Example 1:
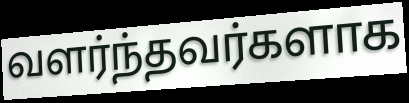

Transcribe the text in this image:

வளர்ந்தவர்களாக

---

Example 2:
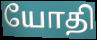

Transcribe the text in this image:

யோதி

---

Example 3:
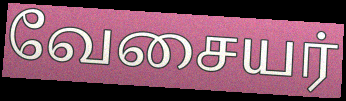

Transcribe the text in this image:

வேசையர்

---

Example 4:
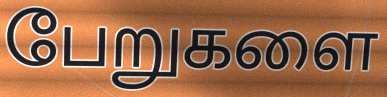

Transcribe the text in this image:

பேறுகளை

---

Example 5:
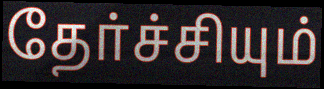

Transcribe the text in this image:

தேர்ச்சியும்